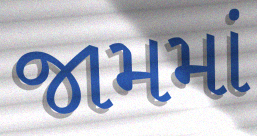
જામમાં